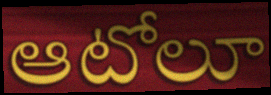
ఆటోలూ